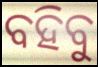
ବହିବୁ